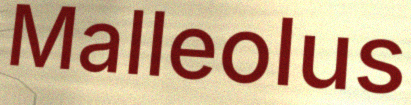
Malleolus